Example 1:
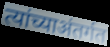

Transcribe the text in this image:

त्यांच्याअंतर्गत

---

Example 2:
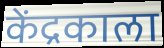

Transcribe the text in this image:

केंद्रकाला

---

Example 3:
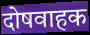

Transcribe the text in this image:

दोषवाहक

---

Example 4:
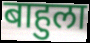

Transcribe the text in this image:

बाहुला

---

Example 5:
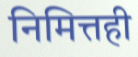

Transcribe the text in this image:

निमित्तही